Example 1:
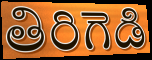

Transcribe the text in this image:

తిరిగెడి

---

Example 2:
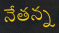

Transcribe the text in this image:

నేతన్న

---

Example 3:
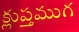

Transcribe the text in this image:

క్లుప్తముగ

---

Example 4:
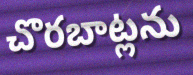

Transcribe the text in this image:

చొరబాట్లను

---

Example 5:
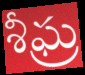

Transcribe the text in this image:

శీఘ్ర